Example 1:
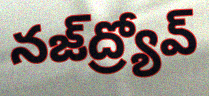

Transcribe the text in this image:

నజ్‌ద్ర్యోవ్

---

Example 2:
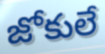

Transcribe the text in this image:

జోకులే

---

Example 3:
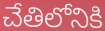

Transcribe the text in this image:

చేతిలోనికి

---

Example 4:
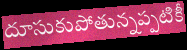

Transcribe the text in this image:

దూసుకుపోతున్నప్పటికీ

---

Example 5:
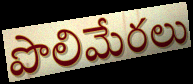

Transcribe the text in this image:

పొలిమేరలు